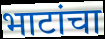
भाटांचा